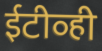
ईटीव्ही